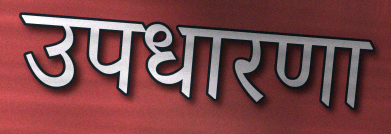
उपधारणा